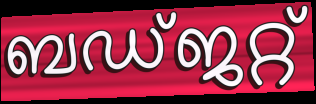
ബഡ്ജറ്റ്